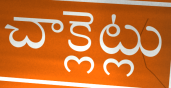
చాక్లెట్లు